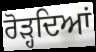
ਰੋੜ੍ਹਦਿਆਂ